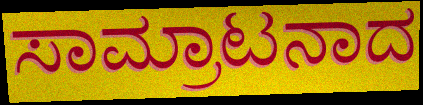
ಸಾಮ್ರಾಟನಾದ